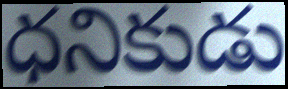
ధనికుడు